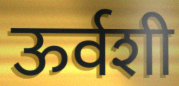
ऊर्वशी